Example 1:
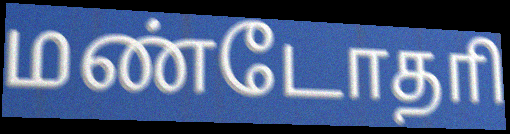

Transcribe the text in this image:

மண்டோதரி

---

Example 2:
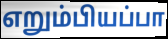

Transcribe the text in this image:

எறும்பியப்பா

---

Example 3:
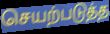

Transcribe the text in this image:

செயற்படுத்த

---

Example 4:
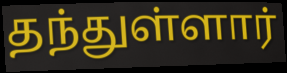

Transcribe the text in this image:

தந்துள்ளார்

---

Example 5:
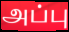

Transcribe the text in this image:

அப்பு